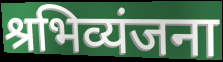
श्रभिव्यंजना